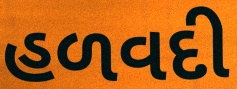
હળવદી